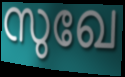
സുഖേ